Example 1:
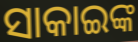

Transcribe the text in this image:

ସାକାଇଙ୍କ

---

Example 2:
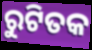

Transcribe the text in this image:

ରୁଟିତକ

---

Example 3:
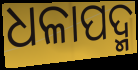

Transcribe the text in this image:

ଧଳାପଦ୍ମ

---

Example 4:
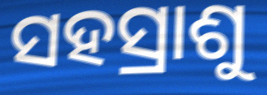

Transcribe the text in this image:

ସହସ୍ରାଶୁ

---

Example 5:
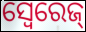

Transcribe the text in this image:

ସ୍ବେରେଜ୍